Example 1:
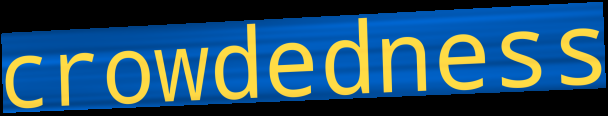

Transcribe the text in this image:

crowdedness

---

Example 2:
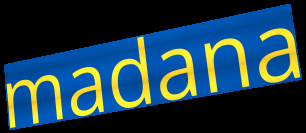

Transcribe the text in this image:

madana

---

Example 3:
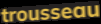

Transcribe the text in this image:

trousseau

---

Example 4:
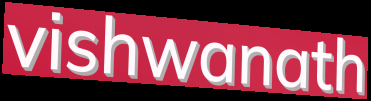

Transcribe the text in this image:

vishwanath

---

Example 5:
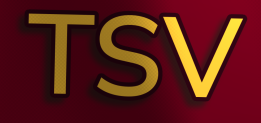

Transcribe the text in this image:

TSV